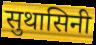
सुथासिनी